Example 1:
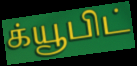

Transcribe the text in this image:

க்யூபிட்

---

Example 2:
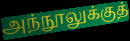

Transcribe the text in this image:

அந்நூலுக்குத்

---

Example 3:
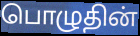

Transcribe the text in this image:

பொழுதின்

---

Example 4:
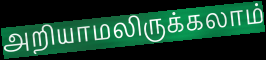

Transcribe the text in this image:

அறியாமலிருக்கலாம்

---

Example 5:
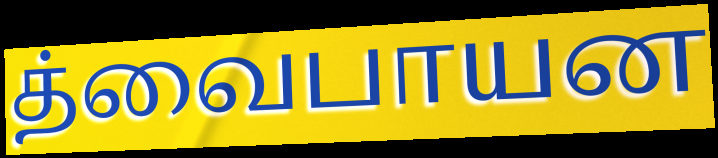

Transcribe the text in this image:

த்வைபாயன